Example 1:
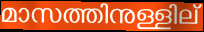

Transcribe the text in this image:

മാസത്തിനുള്ളില്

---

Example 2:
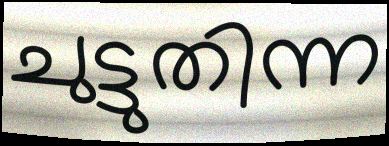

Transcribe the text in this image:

ചുട്ടുതിന്ന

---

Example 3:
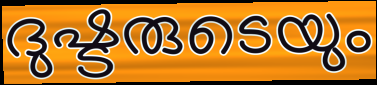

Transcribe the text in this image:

ദുഷ്ടരുടെയും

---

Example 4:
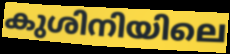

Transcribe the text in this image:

കുശിനിയിലെ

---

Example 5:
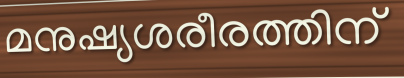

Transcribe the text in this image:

മനുഷ്യശരീരത്തിന്